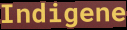
Indigene